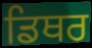
ਡਿਥਰ